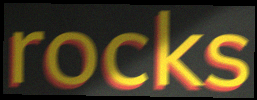
rocks